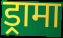
ड्रामा